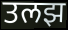
उलझ